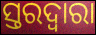
ସ୍ତରଦ୍ୱାରା